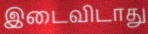
இடைவிடாது